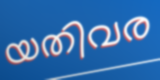
യതിവര